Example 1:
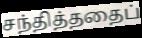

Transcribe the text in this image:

சந்தித்ததைப்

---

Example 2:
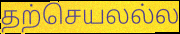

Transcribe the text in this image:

தற்செயலல்ல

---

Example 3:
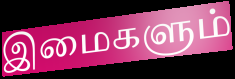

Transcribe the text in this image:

இமைகளும்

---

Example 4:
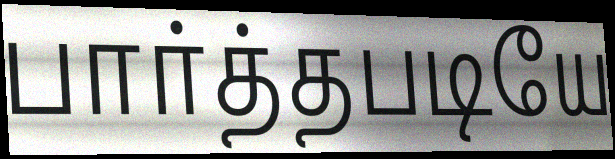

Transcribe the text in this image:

பார்த்தபடியே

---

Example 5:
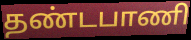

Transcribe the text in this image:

தண்டபாணி